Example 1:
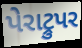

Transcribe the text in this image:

પેરાટ્રુપર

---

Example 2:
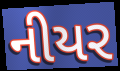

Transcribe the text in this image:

નીયર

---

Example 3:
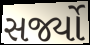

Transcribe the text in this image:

સર્જ્યો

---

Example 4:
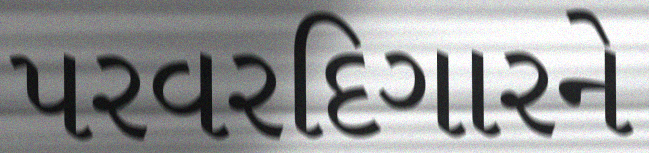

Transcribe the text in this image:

પરવરદિગારને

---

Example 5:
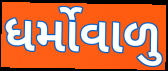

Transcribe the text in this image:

ધર્મોવાળુ